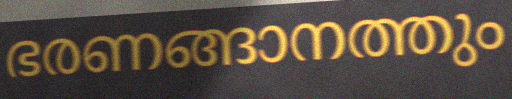
ഭരണങ്ങാനത്തും